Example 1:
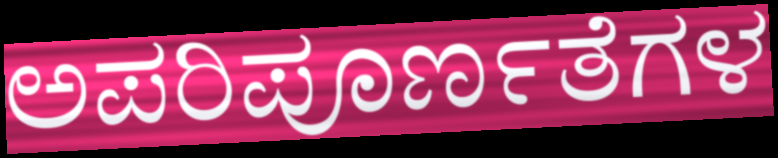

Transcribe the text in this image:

ಅಪರಿಪೂರ್ಣತೆಗಳ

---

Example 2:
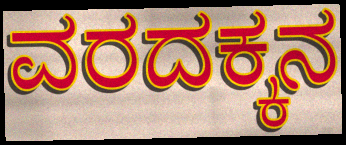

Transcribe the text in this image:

ವರದಕ್ಕನ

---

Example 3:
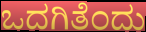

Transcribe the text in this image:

ಒದಗಿತೆಂದು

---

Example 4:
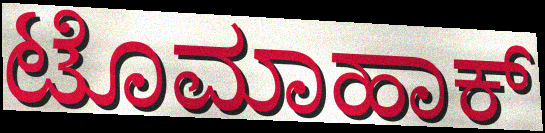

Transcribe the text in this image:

ಟೊಮಾಹಾಕ್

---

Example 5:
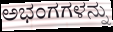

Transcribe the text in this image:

ಅಭಂಗಗಳನ್ನು